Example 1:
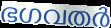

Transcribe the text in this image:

ഭഗവതർ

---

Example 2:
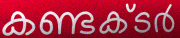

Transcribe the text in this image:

കണ്ടക്ടർ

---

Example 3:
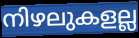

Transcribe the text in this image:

നിഴലുകളല്ല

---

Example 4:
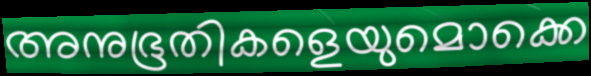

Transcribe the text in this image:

അനുഭൂതികളെയുമൊക്കെ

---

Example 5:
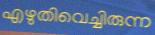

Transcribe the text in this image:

എഴുതിവെച്ചിരുന്ന